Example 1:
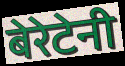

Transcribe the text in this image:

बेरेटेनी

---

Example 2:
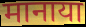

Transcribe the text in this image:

मानाया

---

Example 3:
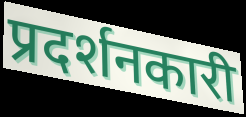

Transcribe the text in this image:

प्रदर्शनकारी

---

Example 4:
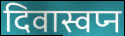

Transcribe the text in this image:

दिवास्‍वप्‍न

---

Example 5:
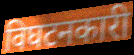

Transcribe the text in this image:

विघटनकारी